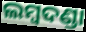
ଲମ୍ୱଦଣ୍ଡା